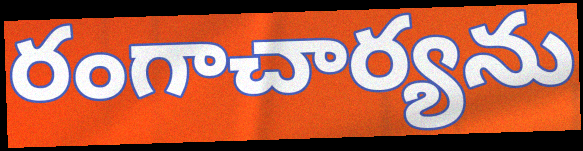
రంగాచార్యను